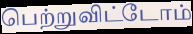
பெற்றுவிட்டோம்